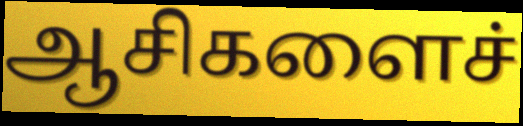
ஆசிகளைச்